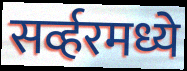
सर्व्हरमध्ये